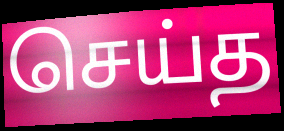
செய்த